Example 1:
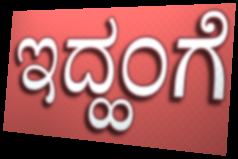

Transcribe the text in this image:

ಇದ್ಹಂಗೆ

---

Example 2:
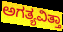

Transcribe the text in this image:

ಅಗತ್ಯವಿತ್ತಾ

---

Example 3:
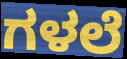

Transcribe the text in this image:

ಗಳಲೆ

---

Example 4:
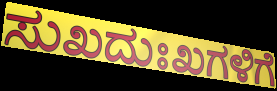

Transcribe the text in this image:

ಸುಖದುಃಖಗಳಿಗೆ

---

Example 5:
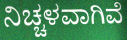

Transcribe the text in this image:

ನಿಚ್ಚಳವಾಗಿವೆ